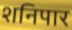
शनिपार